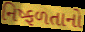
નિષ્ફળતાનો